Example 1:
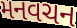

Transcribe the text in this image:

મનવચન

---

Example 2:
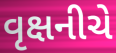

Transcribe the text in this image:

વૃક્ષનીચે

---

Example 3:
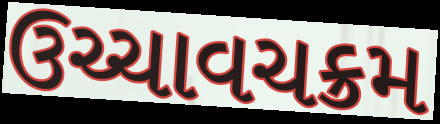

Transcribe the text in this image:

ઉચ્ચાવચક્રમ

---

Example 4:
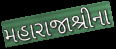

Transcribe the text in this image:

મહારાજાશ્રીના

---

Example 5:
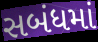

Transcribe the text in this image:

સબંધમાં